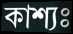
কাশ্যঃ